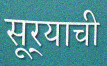
सूर्याची